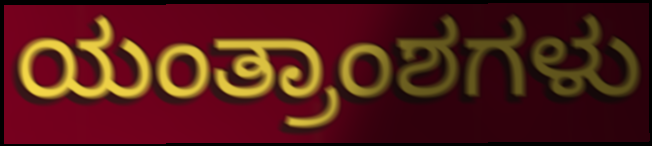
ಯಂತ್ರಾಂಶಗಳು